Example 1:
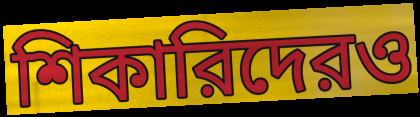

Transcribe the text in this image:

শিকারিদেরও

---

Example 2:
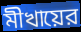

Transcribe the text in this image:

মীখায়ের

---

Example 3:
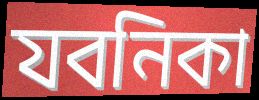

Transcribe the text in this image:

যবনিকা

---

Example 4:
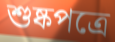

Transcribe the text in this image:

শুষ্কপত্রে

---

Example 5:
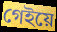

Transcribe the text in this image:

গেইয়ে